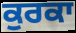
ਕੁਰਕਾ